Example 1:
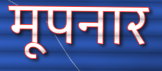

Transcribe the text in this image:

मूपनार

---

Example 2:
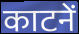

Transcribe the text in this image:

काटनें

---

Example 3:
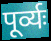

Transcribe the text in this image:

पूर्व्यः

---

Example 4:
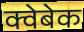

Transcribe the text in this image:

क्वेबेक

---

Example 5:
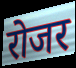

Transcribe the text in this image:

रोजर